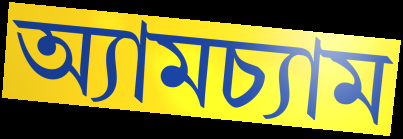
অ্যামচ্যাম